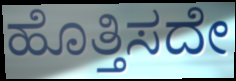
ಹೊತ್ತಿಸದೇ